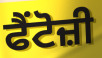
ਫੈਂਟੋਜ਼ੀ